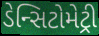
ડેન્સિટોમેટ્રી